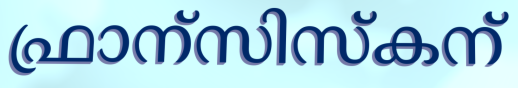
ഫ്രാന്സിസ്കന്